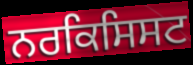
ਨਰਕਿਸਿਸਟ